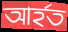
আর্হত